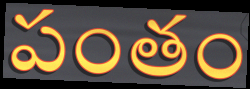
పంతం